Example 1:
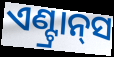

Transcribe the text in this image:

ଏଣ୍ଟ୍ରାନ୍‍ସ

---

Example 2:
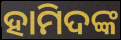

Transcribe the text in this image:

ହାମିଦଙ୍କ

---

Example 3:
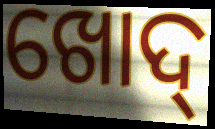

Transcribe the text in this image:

ଖୋଦ୍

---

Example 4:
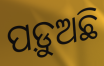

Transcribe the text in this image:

ପଡ଼ୁଅଛି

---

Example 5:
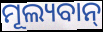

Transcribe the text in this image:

ମୂଲ୍ୟବାନ୍